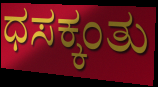
ಧಸಕ್ಕಂತು